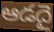
ఆడదై